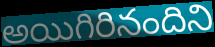
అయిగిరినందిని